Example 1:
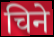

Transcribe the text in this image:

चिने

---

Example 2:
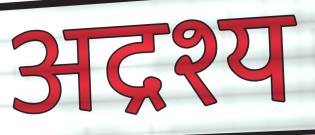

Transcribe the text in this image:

अद्रश्य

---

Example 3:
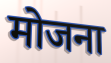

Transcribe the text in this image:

मोजना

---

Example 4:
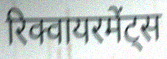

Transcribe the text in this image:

रिक्वायरमेंट्स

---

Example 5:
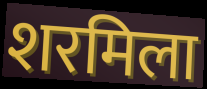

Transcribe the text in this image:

शरमिला